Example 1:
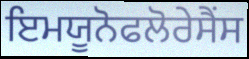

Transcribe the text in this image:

ਇਮਯੂਨੋਫਲੋਰੇਸੈਂਸ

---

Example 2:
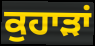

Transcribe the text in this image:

ਕੁਹਾੜਾਂ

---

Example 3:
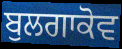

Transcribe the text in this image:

ਬੁਲਗਾਕੋਵ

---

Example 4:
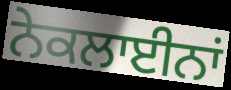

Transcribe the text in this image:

ਨੇਕਲਾਈਨਾਂ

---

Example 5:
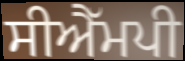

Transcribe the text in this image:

ਸੀਐੱਮਪੀ